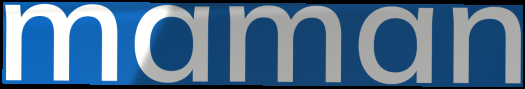
maman